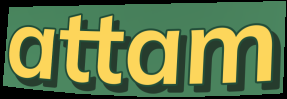
attam